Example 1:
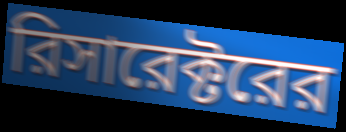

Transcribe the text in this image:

রিসারেক্টরের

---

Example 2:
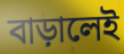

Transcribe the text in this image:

বাড়ালেই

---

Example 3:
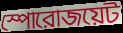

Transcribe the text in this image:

স্পোরোজয়েট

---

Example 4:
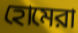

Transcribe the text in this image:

হোমেরা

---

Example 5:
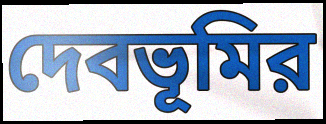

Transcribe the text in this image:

দেবভূমির